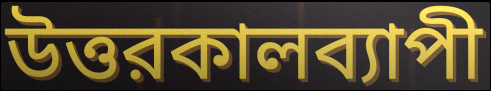
উত্তরকালব্যাপী